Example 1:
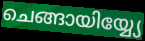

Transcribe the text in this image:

ചെങ്ങായിയ്യ്യേ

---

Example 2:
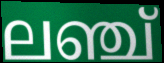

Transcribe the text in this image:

ലഞ്ച്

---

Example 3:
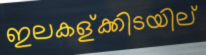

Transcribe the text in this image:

ഇലകള്ക്കിടയില്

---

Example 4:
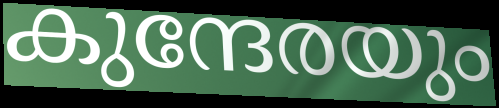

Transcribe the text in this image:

കുന്ദേരയും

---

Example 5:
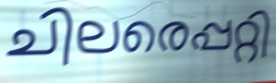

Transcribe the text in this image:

ചിലരെപ്പറ്റി